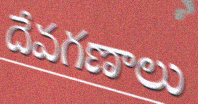
దేవగణాలు